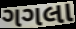
ગગલા